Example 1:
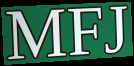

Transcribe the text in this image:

MFJ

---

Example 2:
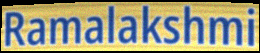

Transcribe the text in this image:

Ramalakshmi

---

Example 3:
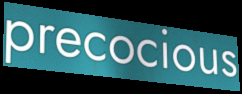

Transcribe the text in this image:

precocious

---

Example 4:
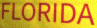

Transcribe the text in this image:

FLORIDA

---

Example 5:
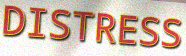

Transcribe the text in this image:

DISTRESS